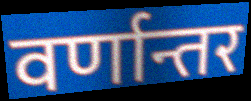
वर्णान्तर